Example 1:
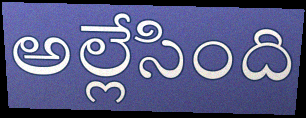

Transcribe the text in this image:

అల్లేసింది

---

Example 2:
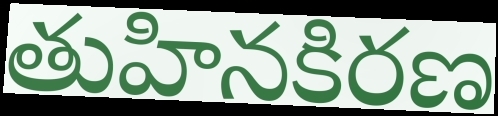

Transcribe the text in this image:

తుహినకిరణ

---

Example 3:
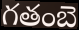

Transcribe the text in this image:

గతంబె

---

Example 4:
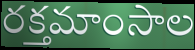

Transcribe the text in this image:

రక్తమాంసాల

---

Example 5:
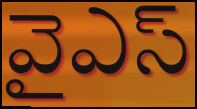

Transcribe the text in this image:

వైఎస్